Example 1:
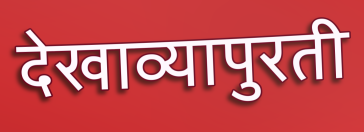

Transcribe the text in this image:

देखाव्यापुरती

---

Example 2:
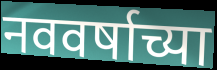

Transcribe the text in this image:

नववर्षाच्या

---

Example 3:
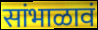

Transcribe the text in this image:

सांभाळावं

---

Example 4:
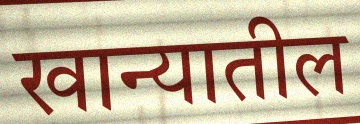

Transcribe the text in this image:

खान्यातील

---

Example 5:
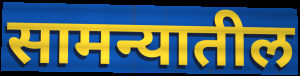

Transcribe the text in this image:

सामन्यातील